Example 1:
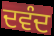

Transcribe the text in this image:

ਦਵੰਦ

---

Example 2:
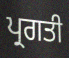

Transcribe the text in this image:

ਪ੍ਰਗਤੀ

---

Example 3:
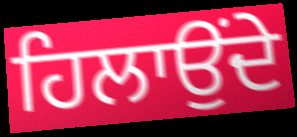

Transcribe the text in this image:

ਹਿਲਾਉਂਦੇ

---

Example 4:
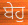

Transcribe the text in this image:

ਬੇਹੁ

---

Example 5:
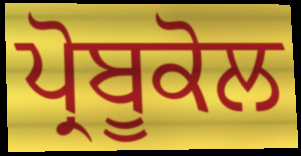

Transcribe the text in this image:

ਪ੍ਰੋਬੂਕੋਲ